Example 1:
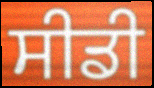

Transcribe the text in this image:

ਸੀਡੀ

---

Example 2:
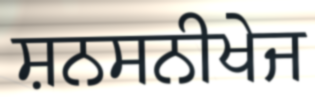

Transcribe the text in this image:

ਸ਼ਨਸਨੀਖੇਜ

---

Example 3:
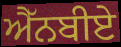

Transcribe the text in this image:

ਐੱਨਬੀਏ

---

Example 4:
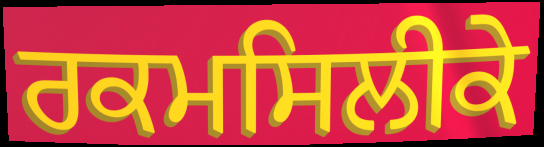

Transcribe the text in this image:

ਰਕਮਸਿਲੀਕੇ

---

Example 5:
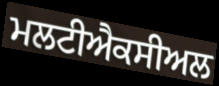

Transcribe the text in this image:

ਮਲਟੀਐਕਸੀਅਲ